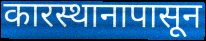
कारस्थानापासून